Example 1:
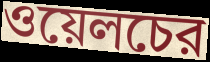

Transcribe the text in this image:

ওয়েলচের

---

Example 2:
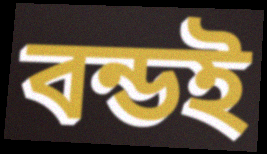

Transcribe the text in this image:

বন্ডই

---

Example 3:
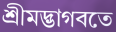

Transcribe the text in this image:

শ্রীমদ্ভাগবতে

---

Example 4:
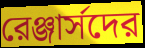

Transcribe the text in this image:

রেঞ্জার্সদের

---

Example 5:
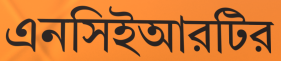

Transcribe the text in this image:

এনসিইআরটির